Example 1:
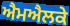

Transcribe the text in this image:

ਐਮਐਲਕੇ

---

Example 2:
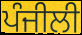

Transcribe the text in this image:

ਪੰਜੀਲੀ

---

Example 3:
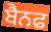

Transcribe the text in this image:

ਬੈਨਫ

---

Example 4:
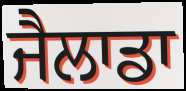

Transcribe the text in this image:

ਜੈਲਾਡਾ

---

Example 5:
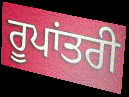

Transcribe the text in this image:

ਰੂਪਾਂਤਰੀ